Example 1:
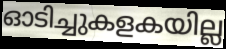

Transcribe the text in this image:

ഓടിച്ചുകളകയില്ല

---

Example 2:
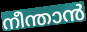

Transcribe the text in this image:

നീന്താൻ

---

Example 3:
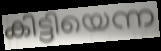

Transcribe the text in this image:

കിട്ടിയെന്ന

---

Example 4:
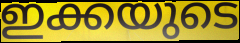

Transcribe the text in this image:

ഇക്കയുടെ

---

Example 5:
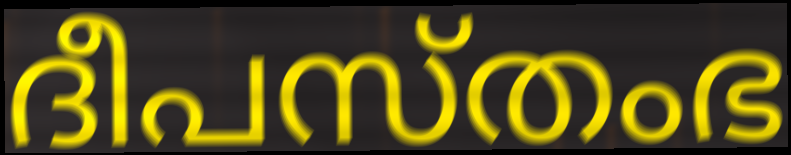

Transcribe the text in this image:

ദീപസ്തംഭ